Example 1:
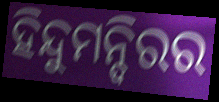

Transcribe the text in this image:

ହିନ୍ଦୁମନ୍ଦିରର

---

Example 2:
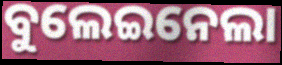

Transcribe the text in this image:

ବୁଲେଇନେଲା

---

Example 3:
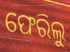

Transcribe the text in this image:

ଫେରିଲୁ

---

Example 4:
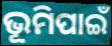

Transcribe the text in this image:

ଭୂମିପାଇଁ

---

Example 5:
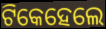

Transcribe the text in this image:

ଟିକେହେଲେ